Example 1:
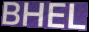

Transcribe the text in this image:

BHEL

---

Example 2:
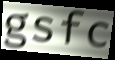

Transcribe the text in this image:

gsfc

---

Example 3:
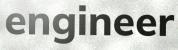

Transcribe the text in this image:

engineer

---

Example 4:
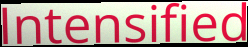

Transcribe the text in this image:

Intensified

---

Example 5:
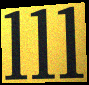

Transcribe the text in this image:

lll